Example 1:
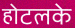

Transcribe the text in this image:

होटलके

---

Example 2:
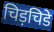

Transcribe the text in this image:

चिड़चिडे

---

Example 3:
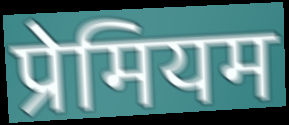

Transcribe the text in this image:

प्रेमियम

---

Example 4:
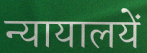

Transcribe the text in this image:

न्यायालयें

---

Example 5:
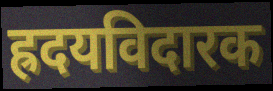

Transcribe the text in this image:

ह्रदयविदारक